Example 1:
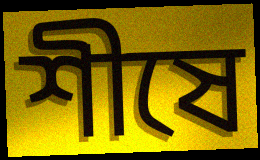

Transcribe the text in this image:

শীষে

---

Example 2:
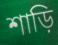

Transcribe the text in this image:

শাড়ি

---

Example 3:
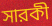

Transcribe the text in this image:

সারকী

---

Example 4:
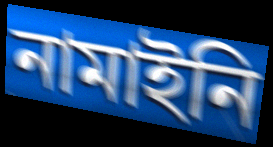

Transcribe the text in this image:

নামাইনি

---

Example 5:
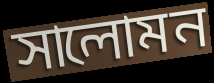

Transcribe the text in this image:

সালোমন